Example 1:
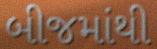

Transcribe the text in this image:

બીજમાંથી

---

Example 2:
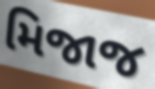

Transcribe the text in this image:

મિજાજ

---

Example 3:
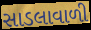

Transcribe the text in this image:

સાડલાવાળી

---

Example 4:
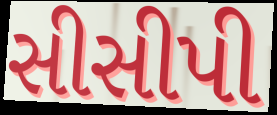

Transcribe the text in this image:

સીસીપી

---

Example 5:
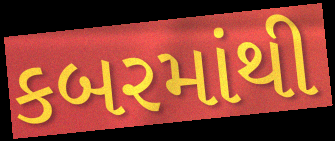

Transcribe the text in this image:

કબરમાંથી